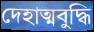
দেহাত্মবুদ্ধি